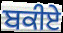
ਬਕੀਏ